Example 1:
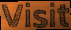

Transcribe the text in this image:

Visit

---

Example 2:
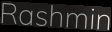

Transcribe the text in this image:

Rashmin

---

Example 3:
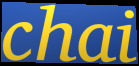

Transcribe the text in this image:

chai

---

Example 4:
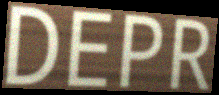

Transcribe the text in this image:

DEPR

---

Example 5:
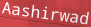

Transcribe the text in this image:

Aashirwad